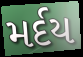
મર્દય